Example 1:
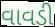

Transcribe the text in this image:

વાવડી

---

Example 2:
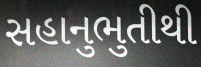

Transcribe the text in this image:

સહાનુભુતીથી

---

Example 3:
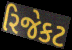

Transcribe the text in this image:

રિજેકટ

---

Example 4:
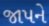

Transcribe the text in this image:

જાપને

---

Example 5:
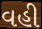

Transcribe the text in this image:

વહી